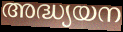
അദ്ധ്യയന